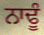
ਨਾਢੂੰ